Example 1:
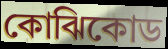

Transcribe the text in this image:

কোঝিকোড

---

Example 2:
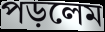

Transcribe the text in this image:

পড়লেম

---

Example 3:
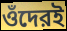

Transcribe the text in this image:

ওঁদেরই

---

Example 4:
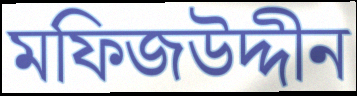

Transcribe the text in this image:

মফিজউদ্দীন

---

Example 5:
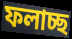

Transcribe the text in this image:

ফলাচ্ছ